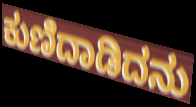
ಕುಣಿದಾಡಿದನು